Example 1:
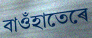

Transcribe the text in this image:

বাওঁহাতেৰে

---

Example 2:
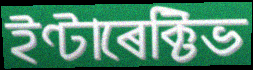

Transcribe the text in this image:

ইণ্টাৰেক্টিভ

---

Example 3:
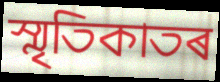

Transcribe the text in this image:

স্মৃতিকাতৰ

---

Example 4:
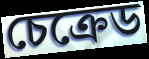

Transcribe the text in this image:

চেক্ৰেড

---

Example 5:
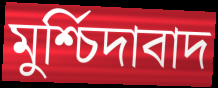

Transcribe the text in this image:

মুৰ্শ্চিদাবাদ